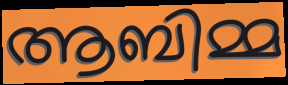
ആബിമ്മ